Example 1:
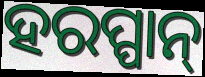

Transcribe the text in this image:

ହରପ୍ପାନ୍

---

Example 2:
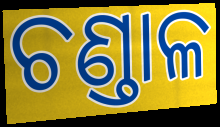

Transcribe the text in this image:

ଚଣ୍ଡାଳ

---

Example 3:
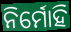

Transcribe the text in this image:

ନିର୍ମୋହି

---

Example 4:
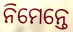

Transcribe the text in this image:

ନିମେନ୍ତେ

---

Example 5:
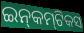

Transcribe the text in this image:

ଇନ୍‍କମ୍‍ଟିକସ